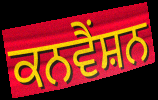
ਕਨਵੈੰਸ਼ਨ